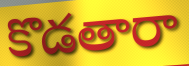
కొడతారా